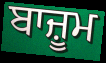
ਬਾਜ਼ੂਮ